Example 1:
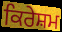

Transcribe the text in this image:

ਕਿਰੇਸ਼ਮ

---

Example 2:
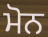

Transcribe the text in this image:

ਮੋਨ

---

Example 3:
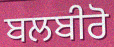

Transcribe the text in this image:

ਬਲਬੀਰੋ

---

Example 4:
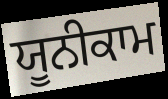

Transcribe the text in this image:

ਯੂਨੀਕਾਮ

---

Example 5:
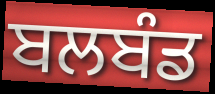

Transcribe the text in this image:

ਬਲਬੰਡ